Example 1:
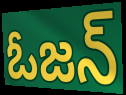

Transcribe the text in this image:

ఓజన్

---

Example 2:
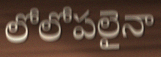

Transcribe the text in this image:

లోలోపలైనా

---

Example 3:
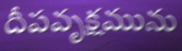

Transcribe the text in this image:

దీపవృక్షమును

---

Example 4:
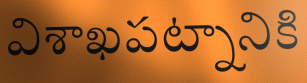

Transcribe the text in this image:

విశాఖపట్నానికి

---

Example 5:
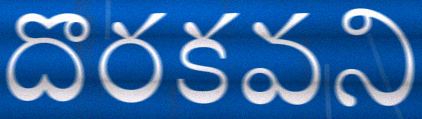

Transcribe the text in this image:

దొరకవని